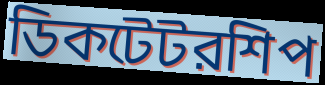
ডিকটেটরশিপ